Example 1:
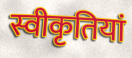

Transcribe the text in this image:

स्वीकृतियां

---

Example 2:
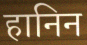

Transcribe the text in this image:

हानिन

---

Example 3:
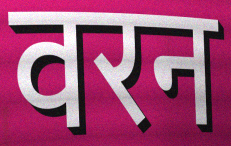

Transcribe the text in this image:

वरन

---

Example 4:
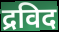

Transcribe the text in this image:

द्रविद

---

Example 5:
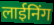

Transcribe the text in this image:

लाईनिंग